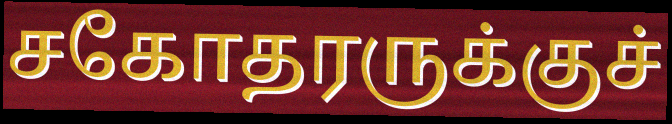
சகோதரருக்குச்